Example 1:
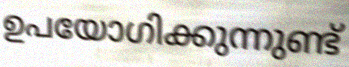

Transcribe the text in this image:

ഉപയോഗിക്കുന്നുണ്ട്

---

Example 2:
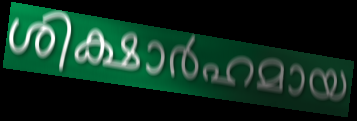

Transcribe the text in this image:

ശിക്ഷാർഹമായ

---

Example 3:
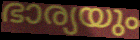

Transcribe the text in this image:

ഭാര്യയും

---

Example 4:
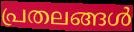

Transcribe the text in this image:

പ്രതലങ്ങൾ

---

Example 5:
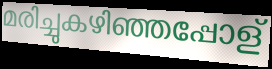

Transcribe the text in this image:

മരിച്ചുകഴിഞ്ഞപ്പോള്